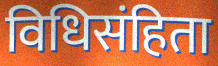
विधिसंहिता